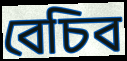
বেচিব